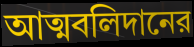
আত্মবলিদানের